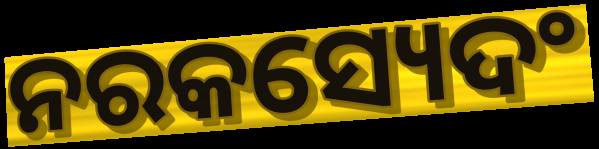
ନରକସ୍ୟେଦଂ